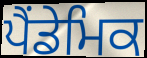
ਪੈਂਡੇਮਿਕ